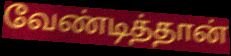
வேண்டித்தான்